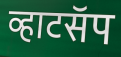
व्हाटसॅप